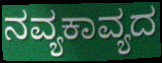
ನವ್ಯಕಾವ್ಯದ